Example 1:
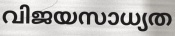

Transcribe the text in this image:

വിജയസാധ്യത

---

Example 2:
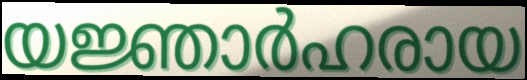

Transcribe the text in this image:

യജ്ഞാർഹരായ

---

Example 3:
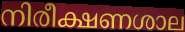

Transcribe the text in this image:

നിരീക്ഷണശാല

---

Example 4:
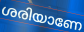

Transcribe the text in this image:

ശരിയാണേ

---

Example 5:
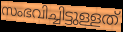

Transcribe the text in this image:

സംഭവിച്ചിട്ടുള്ളത്